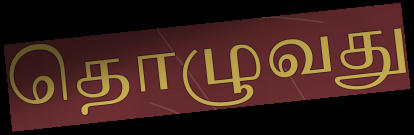
தொழுவது